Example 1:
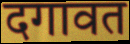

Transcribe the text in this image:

दगावत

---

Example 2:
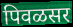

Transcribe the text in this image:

पिवळसर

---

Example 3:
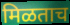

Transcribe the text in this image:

मिळताच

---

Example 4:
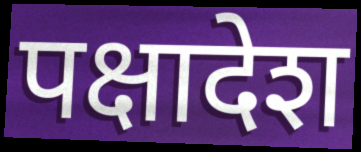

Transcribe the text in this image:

पक्षादेश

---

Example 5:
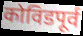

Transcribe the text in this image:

कोविडपूर्व